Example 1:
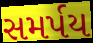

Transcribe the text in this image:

સમર્પય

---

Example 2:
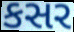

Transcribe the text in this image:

કસર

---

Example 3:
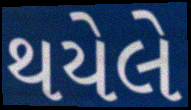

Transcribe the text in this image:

થયેલે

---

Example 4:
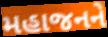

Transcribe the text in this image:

મહાજનને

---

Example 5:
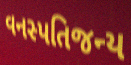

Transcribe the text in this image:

વનસ્પતિજન્ય